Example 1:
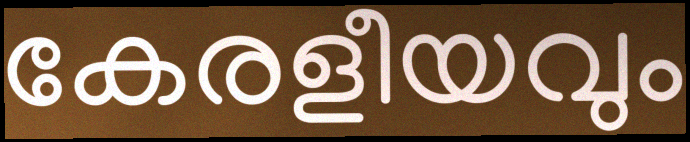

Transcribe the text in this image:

കേരളീയവും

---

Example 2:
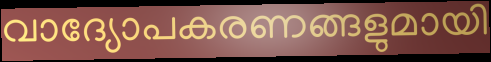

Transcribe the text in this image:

വാദ്യോപകരണങ്ങളുമായി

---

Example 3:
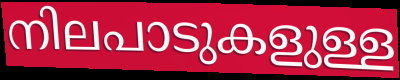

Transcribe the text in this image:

നിലപാടുകളുള്ള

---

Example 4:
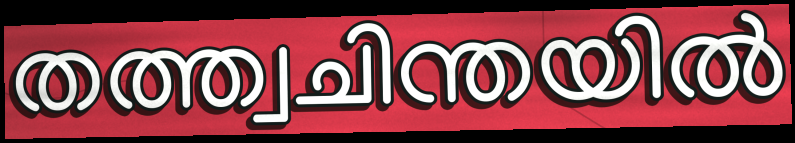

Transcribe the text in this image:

തത്ത്വചിന്തയിൽ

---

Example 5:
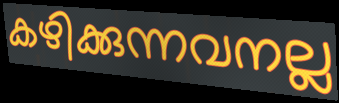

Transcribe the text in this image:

കഴിക്കുന്നവനല്ല